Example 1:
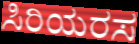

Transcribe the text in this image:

ಸಿರಿಯರಸ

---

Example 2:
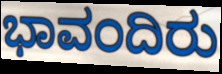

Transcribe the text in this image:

ಭಾವಂದಿರು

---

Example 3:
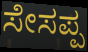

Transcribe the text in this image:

ಸೇಸಪ್ಪ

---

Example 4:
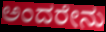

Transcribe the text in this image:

ಅಂದರೇನು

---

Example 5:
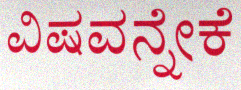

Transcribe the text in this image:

ವಿಷವನ್ನೇಕೆ